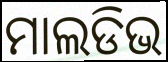
ମାଲଡିଭ